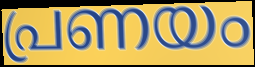
പ്രണയം